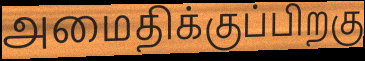
அமைதிக்குப்பிறகு